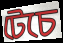
টেচে